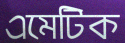
এমেটিক